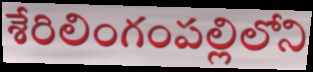
శేరిలింగంపల్లిలోని